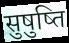
सुषुष्ति